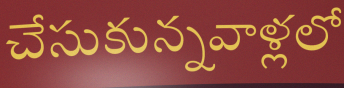
చేసుకున్నవాళ్లలో